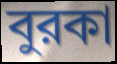
বুরকা